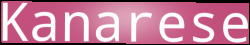
Kanarese